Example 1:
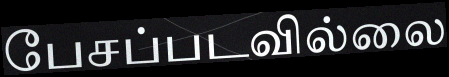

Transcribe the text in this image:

பேசப்படவில்லை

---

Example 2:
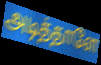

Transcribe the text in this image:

அடித்தாளே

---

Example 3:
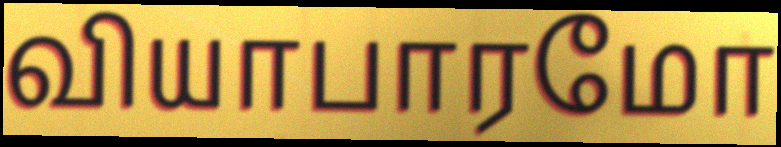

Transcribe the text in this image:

வியாபாரமோ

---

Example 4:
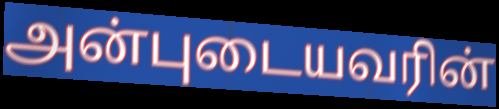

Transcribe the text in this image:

அன்புடையவரின்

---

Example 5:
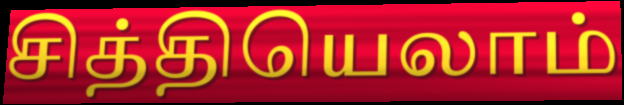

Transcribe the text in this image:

சித்தியெலாம்